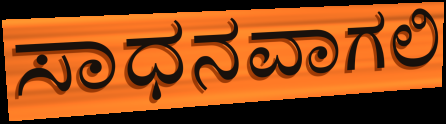
ಸಾಧನವಾಗಲಿ